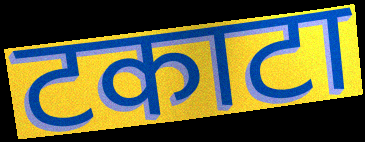
टकाटा